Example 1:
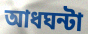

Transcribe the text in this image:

আধঘন্টা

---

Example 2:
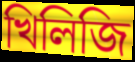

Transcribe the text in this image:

খিলিজি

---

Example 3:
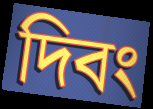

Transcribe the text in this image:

দিবং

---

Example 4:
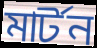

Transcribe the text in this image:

মার্টন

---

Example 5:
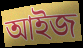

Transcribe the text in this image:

আইজ